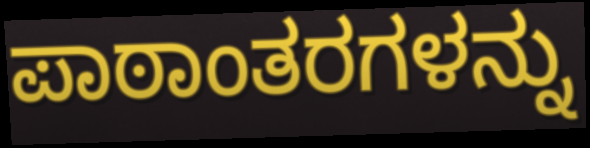
ಪಾಠಾಂತರಗಳನ್ನು